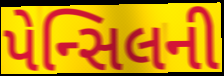
પેન્સિલની